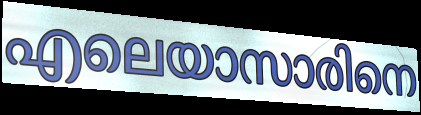
എലെയാസാരിനെ